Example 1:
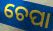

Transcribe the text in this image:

ଚେପା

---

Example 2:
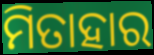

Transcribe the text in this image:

ମିତାହାର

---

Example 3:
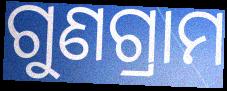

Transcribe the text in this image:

ଗୁଣଗ୍ରାମ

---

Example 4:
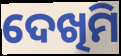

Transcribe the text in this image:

ଦେଖିମି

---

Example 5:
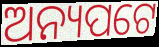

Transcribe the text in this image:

ଅନ୍ୟପଟେ